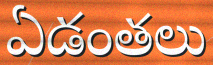
ఏడంతలు